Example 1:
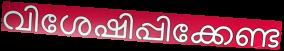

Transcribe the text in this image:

വിശേഷിപ്പിക്കേണ്ട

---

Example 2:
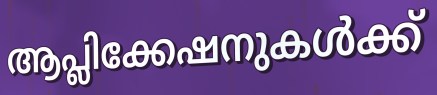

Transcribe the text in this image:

ആപ്ലിക്കേഷനുകൾക്ക്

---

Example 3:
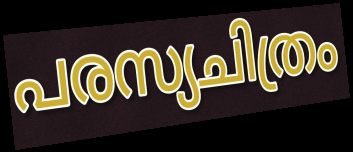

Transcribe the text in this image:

പരസ്യചിത്രം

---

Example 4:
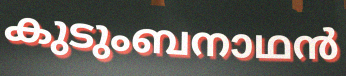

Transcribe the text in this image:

കുടുംബനാഥൻ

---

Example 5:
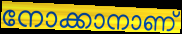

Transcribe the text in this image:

നോക്കാനാണ്